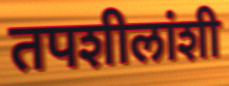
तपशीलांशी